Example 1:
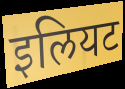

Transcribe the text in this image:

इलियट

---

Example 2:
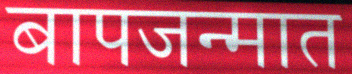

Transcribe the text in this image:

बापजन्मात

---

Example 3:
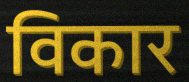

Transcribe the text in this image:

विकार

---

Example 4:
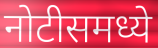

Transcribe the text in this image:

नोटीसमध्ये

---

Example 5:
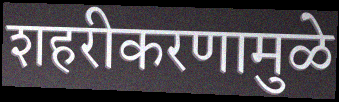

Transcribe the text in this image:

शहरीकरणामुळे